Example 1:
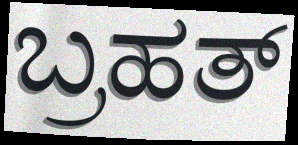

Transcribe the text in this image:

ಬ್ರಹತ್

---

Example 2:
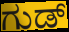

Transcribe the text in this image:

ಗುಡ್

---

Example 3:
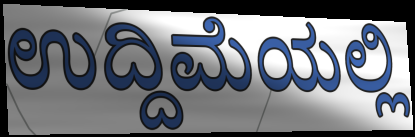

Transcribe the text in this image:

ಉದ್ದಿಮೆಯಲ್ಲಿ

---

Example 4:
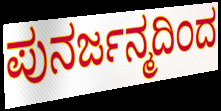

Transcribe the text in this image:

ಪುನರ್ಜನ್ಮದಿಂದ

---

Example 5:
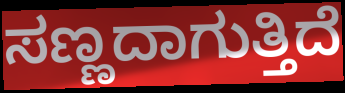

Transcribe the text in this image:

ಸಣ್ಣದಾಗುತ್ತಿದೆ